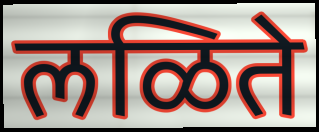
लळिते